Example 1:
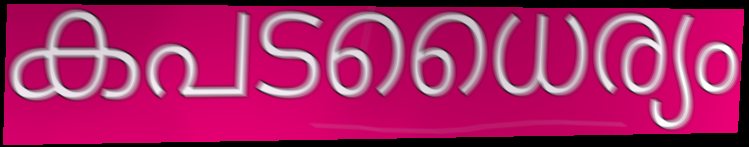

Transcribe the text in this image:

കപടധൈര്യം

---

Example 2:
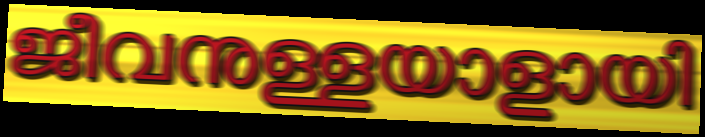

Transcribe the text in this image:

ജീവനുള്ളയാളായി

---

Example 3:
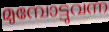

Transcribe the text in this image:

മുമ്പോട്ടുവന്ന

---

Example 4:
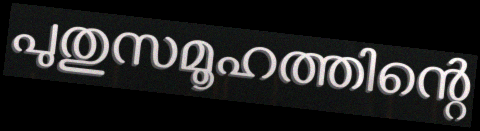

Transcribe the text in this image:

പുതുസമൂഹത്തിന്റെ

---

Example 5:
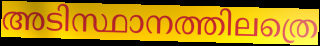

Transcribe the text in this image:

അടിസ്ഥാനത്തിലത്രെ